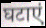
घटाएं